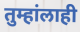
तुम्हांलाही